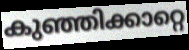
കുഞ്ഞിക്കാറ്റെ